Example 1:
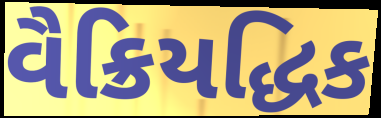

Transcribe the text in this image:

વૈક્રિયદ્ધિક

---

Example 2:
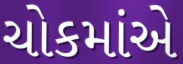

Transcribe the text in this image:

ચોકમાંએ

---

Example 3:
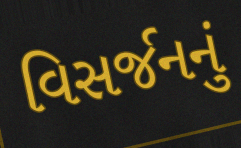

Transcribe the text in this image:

વિસર્જનનું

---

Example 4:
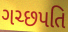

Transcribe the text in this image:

ગચ્છપતિ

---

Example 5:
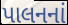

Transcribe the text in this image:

પાલનનાં